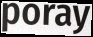
poray